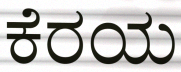
ಕೆರಯ